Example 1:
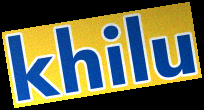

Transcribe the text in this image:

khilu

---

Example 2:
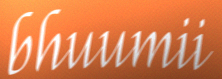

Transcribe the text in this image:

bhuumii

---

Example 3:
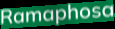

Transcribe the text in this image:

Ramaphosa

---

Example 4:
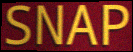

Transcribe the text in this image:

SNAP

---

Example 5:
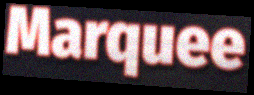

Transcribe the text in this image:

Marquee